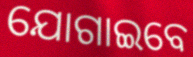
ଯୋଗାଇବେ